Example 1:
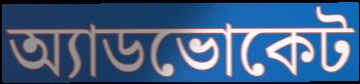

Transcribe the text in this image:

অ্যাডভোকেট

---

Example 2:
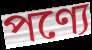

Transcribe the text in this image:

পণ্যে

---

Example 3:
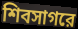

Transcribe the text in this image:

শিবসাগরে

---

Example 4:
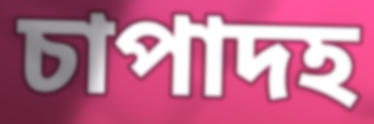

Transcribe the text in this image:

চাপাদহ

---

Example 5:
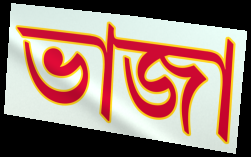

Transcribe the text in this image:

ভাজা